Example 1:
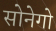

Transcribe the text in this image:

सोनेगो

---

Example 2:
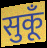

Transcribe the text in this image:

सुकूँ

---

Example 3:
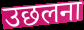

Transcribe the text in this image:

उछलना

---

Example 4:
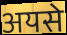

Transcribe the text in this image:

अयसे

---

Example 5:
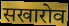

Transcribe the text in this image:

सखारोव